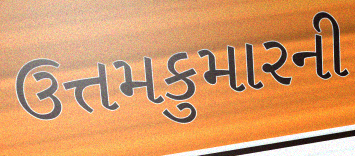
ઉત્તમકુમારની